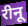
रीनू